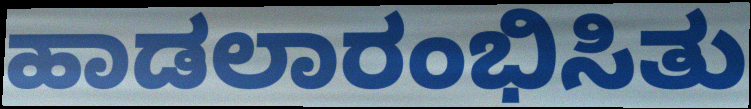
ಹಾಡಲಾರಂಭಿಸಿತು